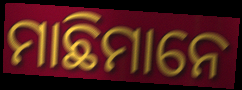
ମାଛିମାନେ